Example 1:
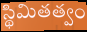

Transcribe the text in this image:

స్థిమితత్వం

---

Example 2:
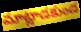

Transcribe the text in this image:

మాట్లాడకుండ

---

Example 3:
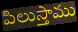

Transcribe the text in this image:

పిలుస్తాము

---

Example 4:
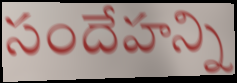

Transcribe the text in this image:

సందేహన్ని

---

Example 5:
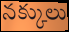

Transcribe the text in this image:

నక్కులు